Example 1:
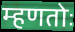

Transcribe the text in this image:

म्हणतोः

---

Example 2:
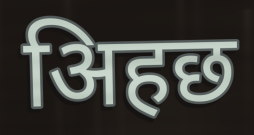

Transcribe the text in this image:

अिहछ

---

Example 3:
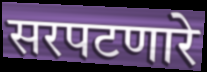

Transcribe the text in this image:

सरपटणारे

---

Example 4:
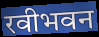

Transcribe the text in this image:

रवीभवन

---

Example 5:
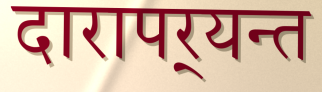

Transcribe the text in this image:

दारापर्यन्त